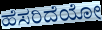
ಹೆಸರಿದೆಯೋ